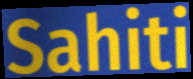
Sahiti